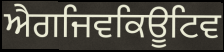
ਐਗਜਿਵਕਿਊਟਿਵ